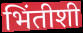
भिंतीशी